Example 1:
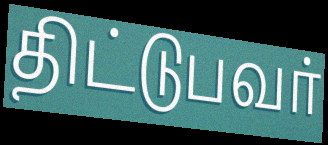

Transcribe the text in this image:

திட்டுபவர்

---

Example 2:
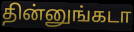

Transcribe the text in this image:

தின்னுங்கடா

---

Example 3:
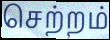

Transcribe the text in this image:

செற்றம்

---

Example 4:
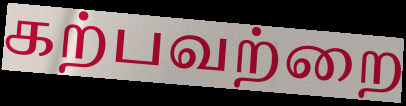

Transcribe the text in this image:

கற்பவற்றை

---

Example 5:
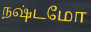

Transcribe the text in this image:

நஷ்டமோ